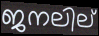
ജനലില്